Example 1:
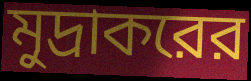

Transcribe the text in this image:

মুদ্রাকরের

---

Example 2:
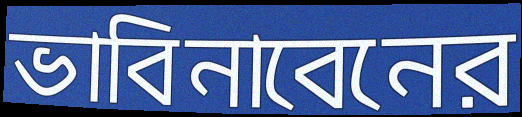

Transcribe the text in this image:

ভাবিনাবেনের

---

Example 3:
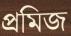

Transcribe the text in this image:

প্রমিজ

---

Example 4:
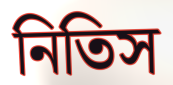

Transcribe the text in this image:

নিতিস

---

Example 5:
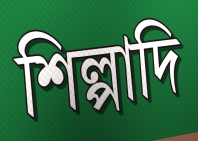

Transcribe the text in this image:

শিল্পাদি